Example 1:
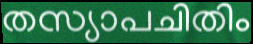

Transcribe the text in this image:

തസ്യാപചിതിം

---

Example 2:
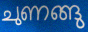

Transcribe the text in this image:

ചുണങ്ങു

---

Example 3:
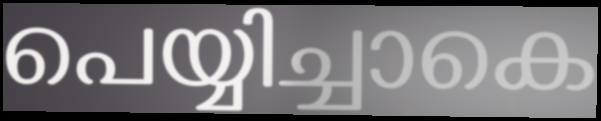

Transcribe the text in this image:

പെയ്യിച്ചാകെ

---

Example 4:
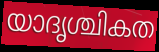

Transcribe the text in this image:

യാദൃശ്ചികത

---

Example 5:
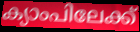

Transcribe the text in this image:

ക്യാംപിലേക്ക്